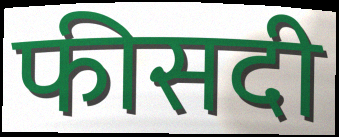
फीसदी